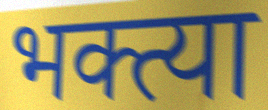
भक्त्या